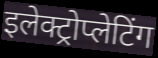
इलेक्ट्रोप्लेटिंग